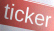
ticker